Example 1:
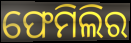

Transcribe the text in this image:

ଫେମିଲିର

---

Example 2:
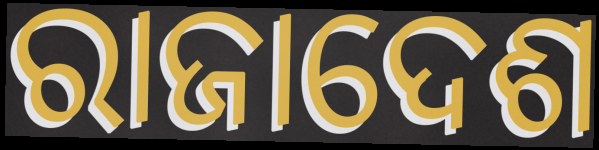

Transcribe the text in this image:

ରାଜାଦେଶ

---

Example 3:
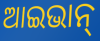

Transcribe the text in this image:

ଆଇଭାନ୍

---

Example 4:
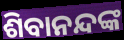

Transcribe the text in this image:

ଶିବାନନ୍ଦଙ୍କ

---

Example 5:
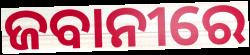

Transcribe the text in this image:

ଜବାନୀରେ